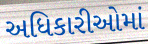
અધિકારીઓમાં